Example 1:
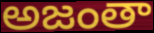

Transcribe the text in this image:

అజంతా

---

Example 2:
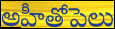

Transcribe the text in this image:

అహీతోపెలు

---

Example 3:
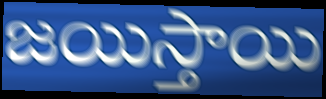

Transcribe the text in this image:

జయిస్తాయి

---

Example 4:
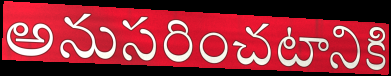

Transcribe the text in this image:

అనుసరించటానికి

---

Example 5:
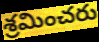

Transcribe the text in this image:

శ్రమించరు